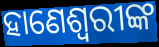
ହାଣେଶ୍ୱରୀଙ୍କ